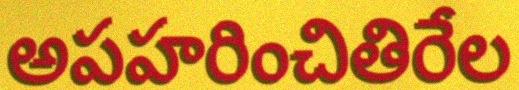
అపహరించితిరేల